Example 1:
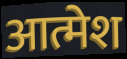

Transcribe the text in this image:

आत्मेश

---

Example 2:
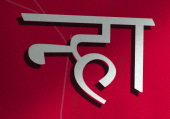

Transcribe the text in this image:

न्हा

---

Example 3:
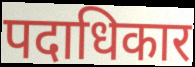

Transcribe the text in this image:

पदाधिकार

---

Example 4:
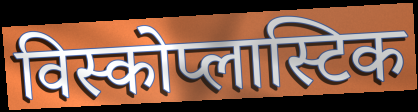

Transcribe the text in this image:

विस्कोप्लास्टिक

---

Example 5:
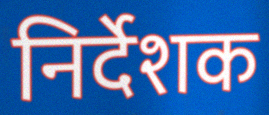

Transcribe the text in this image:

निर्देशक